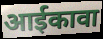
आईकावा